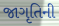
જાગૃતિની